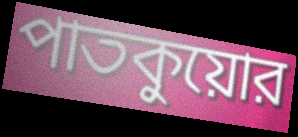
পাতকুয়োর